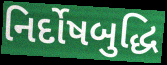
નિર્દોષબુદ્ધિ